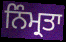
ਨਿੰਮ੍ਰਤਾ